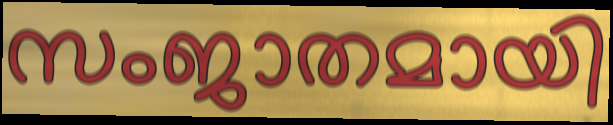
സംജാതമായി